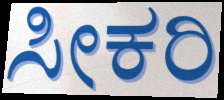
ಸೀಕರಿ